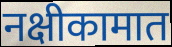
नक्षीकामात